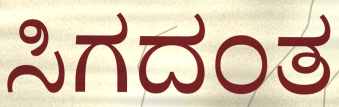
ಸಿಗದಂತ